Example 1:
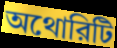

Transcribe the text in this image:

অথোরিটি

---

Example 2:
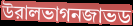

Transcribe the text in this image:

উরালভাগনজাভড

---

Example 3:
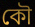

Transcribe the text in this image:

কৌ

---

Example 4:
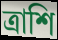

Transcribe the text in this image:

ত্রাশি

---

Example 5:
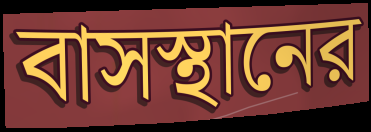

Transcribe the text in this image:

বাসস্থানের